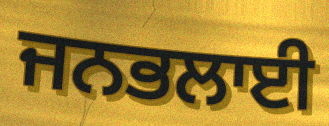
ਜਨਭਲਾਈ